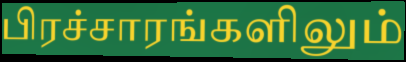
பிரச்சாரங்களிலும்